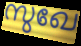
സുഖേ